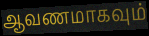
ஆவணமாகவும்